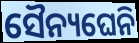
ସୈନ୍ୟଘେନି